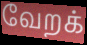
வேறக்